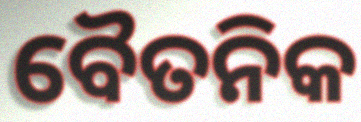
ବୈତନିକ